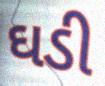
ઘડી